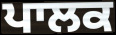
ਪਾਲਕ